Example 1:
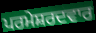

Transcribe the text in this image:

ਪਰਮੇਸ਼ਰਦਵਾਰ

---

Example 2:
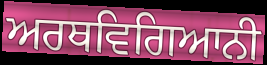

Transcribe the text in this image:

ਅਰਥਵਿਗਿਆਨੀ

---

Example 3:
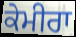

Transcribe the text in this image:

ਕੇਮੀਰਾ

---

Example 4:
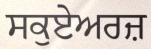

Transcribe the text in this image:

ਸਕੁਏਅਰਜ਼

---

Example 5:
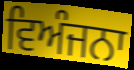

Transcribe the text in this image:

ਵਿਅੰਜਨਾ